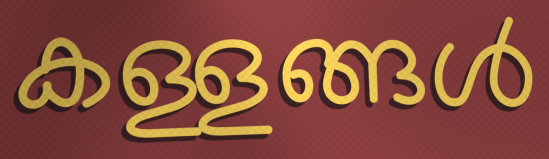
കള്ളങ്ങൾ